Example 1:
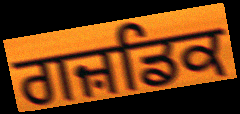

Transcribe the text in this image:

ਗਜ਼ਡਿਕ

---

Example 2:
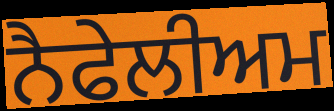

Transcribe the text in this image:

ਨੈਫੇਲੀਅਮ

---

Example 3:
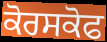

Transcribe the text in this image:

ਕੋਰਸਕੋਫ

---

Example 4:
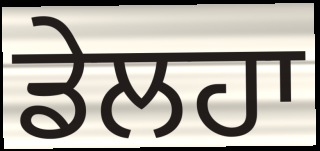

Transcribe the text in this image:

ਡੇਲਹਾ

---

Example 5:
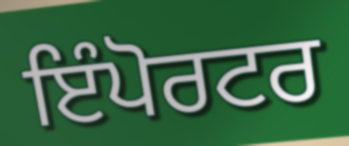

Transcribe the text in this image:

ਇੰਪੋਰਟਰ